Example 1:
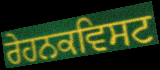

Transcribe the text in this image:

ਰੇਹਨਕਵਿਸਟ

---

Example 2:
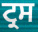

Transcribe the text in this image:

ਟ੍ਰਸ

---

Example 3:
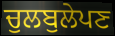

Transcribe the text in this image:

ਚੁਲਬੁਲੇਪਣ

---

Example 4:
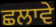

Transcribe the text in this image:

ਛਲਾਵੇ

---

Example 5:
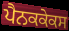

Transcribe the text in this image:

ਪੈਨਕਕੇਕਸ